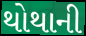
થોથાની